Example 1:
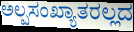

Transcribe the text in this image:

ಅಲ್ಪಸಂಖ್ಯಾತರಲ್ಲದ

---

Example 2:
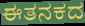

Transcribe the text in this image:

ಈತನಕದ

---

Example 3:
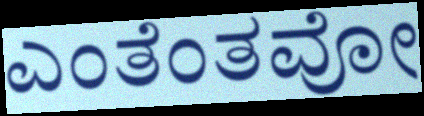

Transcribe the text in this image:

ಎಂತೆಂತವೋ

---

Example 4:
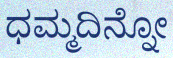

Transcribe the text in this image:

ಧಮ್ಮದಿನ್ನೋ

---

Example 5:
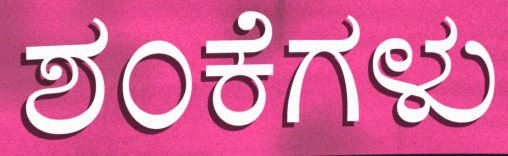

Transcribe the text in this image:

ಶಂಕೆಗಳು